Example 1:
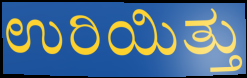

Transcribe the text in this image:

ಉರಿಯಿತ್ತು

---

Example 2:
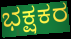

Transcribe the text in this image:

ಭಕ್ಷಕರ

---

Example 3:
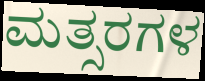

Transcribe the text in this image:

ಮತ್ಸರಗಳ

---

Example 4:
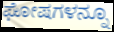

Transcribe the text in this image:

ಘೋಷಗಳನ್ನೂ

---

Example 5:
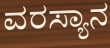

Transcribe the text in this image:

ವರಸ್ಯಾನ